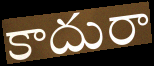
కాదురా